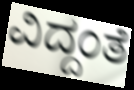
ವಿದ್ದಂತೆ